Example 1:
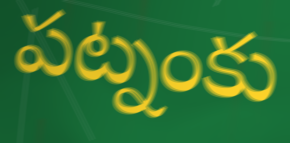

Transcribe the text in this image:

పట్నంకు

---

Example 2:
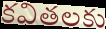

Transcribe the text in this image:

కవితలకు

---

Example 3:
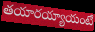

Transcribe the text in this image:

తయారయ్యాయంటే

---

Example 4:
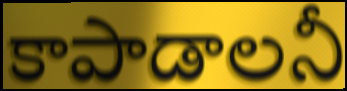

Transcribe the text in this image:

కాపాడాలనీ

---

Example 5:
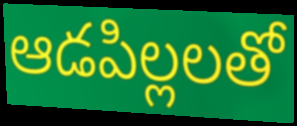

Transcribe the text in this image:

ఆడపిల్లలతో